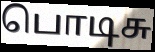
பொடிசு